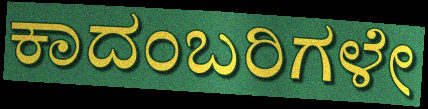
ಕಾದಂಬರಿಗಳೇ